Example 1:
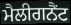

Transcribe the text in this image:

ਮੈਲੀਗਨੈਂਟ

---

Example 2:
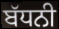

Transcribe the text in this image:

ਬੱਧਨੀ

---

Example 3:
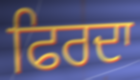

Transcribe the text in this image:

ਫਿਰਦਾ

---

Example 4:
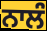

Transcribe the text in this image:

ਨਾਲੰ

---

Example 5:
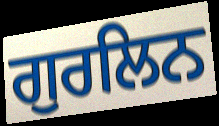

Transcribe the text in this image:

ਗੁਰਲਿਨ